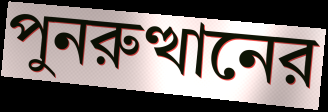
পুনরুত্থানের